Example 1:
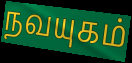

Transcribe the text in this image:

நவயுகம்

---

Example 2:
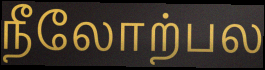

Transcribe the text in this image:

நீலோற்பல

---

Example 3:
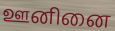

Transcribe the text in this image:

ஊனினை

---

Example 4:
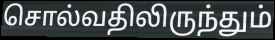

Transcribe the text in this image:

சொல்வதிலிருந்தும்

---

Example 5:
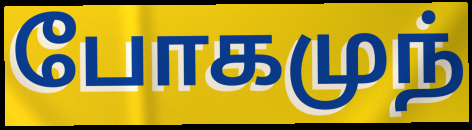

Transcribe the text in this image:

போகமுந்